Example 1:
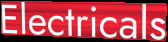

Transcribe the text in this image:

Electricals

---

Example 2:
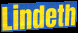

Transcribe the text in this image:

Lindeth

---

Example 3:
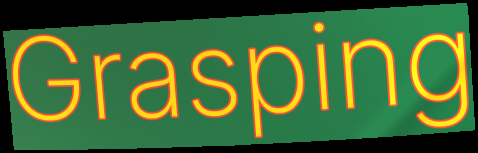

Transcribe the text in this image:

Grasping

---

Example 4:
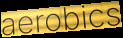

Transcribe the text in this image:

aerobics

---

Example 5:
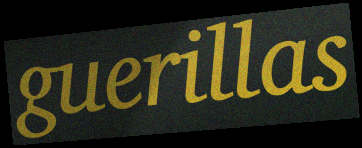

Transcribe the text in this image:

guerillas